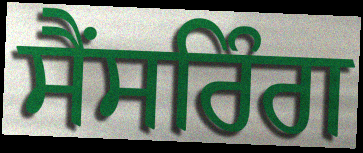
ਸੈਂਸਰਿੰਗ